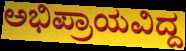
ಅಭಿಪ್ರಾಯವಿದ್ದ